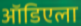
ऑडिएला